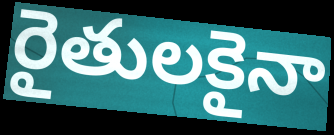
రైతులకైనా